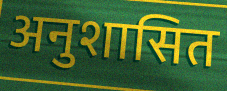
अनुशासित